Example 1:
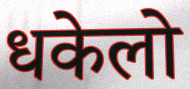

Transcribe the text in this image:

धकेलो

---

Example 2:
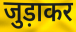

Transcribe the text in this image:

जुड़ाकर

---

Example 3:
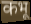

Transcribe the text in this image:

कभू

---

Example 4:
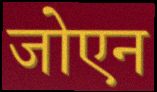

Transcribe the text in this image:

जोएन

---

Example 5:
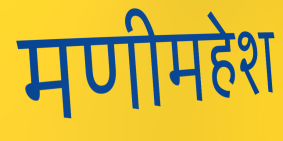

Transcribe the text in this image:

मणीमहेश